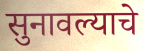
सुनावल्याचे